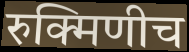
रुक्मिणीच